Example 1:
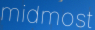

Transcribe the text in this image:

midmost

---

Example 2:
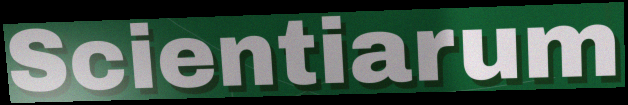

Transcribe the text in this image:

Scientiarum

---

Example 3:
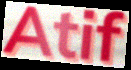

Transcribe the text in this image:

Atif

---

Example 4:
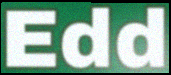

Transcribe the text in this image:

Edd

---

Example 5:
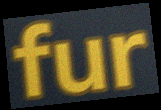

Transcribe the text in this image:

fur